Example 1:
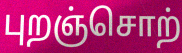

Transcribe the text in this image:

புறஞ்சொற்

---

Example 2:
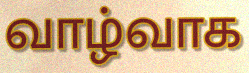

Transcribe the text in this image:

வாழ்வாக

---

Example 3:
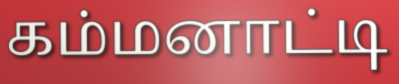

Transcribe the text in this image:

கம்மனாட்டி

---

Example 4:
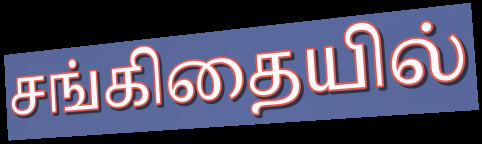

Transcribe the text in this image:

சங்கிதையில்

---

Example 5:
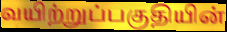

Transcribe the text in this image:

வயிற்றுப்பகுதியின்